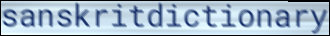
sanskritdictionary